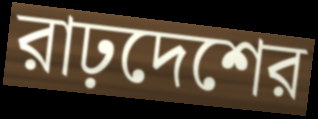
রাঢ়দেশের